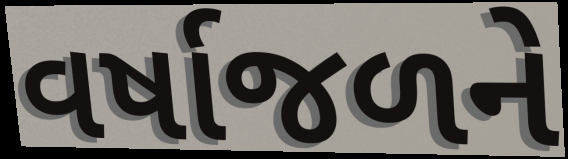
વર્ષાજળને